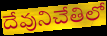
దేవునిచేతిలో